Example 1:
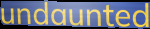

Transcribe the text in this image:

undaunted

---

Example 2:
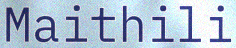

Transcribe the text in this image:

Maithili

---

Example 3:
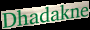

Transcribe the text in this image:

Dhadakne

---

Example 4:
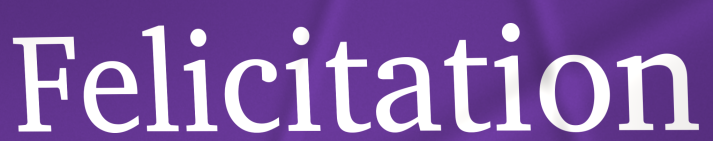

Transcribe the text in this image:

Felicitation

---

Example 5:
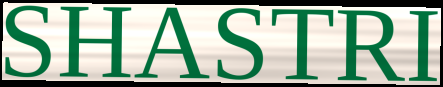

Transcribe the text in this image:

SHASTRI